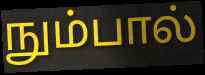
நும்பால்